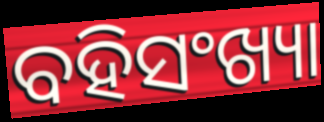
ବହିସଂଖ୍ୟା